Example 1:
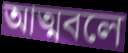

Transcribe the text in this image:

আত্মবলে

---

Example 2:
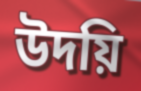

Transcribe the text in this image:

উদয়ি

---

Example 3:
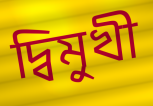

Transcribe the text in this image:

দ্বিমুখী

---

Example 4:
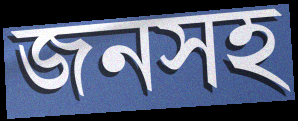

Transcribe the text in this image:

জনসহ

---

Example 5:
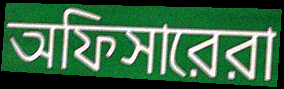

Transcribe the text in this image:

অফিসারেরা